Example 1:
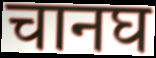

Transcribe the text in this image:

चानघ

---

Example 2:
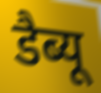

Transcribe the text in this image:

डैब्यू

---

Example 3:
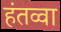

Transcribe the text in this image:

हंतव्वा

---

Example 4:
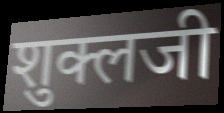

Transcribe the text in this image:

शुक्‍लजी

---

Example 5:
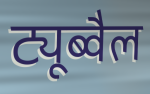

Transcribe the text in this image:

ट्यूब्वैल